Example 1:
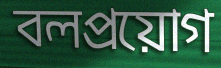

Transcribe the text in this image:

বলপ্রয়োগ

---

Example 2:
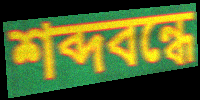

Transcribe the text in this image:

শব্দবন্ধে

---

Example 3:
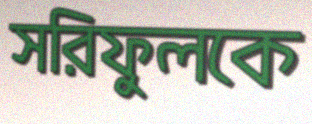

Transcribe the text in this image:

সরিফুলকে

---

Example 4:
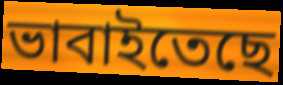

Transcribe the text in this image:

ভাবাইতেছে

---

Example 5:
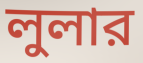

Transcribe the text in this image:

লুলার